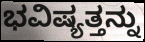
ಭವಿಷ್ಯತ್ತನ್ನು